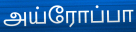
அய்ரோப்பா